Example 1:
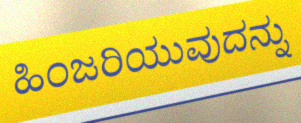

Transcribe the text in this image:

ಹಿಂಜರಿಯುವುದನ್ನು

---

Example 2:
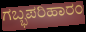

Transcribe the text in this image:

ಗಬ್ಭಪರಿಹಾರಂ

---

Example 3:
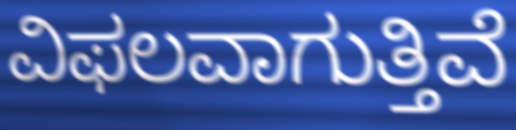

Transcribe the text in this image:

ವಿಫಲವಾಗುತ್ತಿವೆ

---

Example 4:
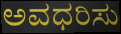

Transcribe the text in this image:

ಅವಧರಿಸು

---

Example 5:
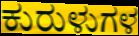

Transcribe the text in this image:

ಕುರುಳುಗಳ